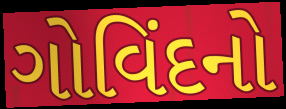
ગોવિંદનો